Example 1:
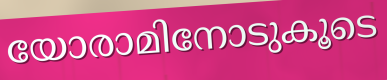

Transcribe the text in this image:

യോരാമിനോടുകൂടെ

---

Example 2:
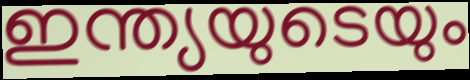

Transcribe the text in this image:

ഇന്ത്യയുടെയും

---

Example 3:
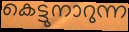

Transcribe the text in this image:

കെട്ടുനാറുന്ന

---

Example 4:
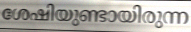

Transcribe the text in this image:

ശേഷിയുണ്ടായിരുന്ന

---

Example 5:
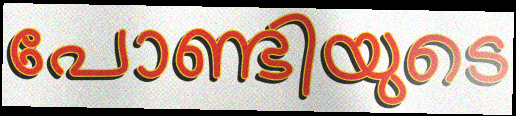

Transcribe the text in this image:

പോണ്ടിയുടെ